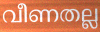
വീണതല്ല